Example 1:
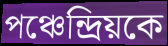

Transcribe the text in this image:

পঞ্চেন্দ্রিয়কে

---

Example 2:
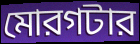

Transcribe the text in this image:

মোরগটার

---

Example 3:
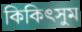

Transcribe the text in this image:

কিকিৎসুম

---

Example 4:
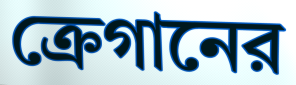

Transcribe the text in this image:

ক্রেগানের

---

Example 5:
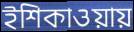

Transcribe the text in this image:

ইশিকাওয়ায়